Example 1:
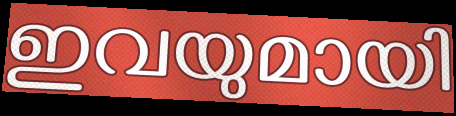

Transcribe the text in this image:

ഇവയുമായി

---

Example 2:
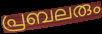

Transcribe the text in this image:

പ്രബലരും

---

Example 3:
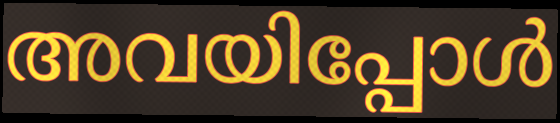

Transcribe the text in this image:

അവയിപ്പോൾ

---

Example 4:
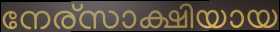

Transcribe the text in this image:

നേര്സാക്ഷിയായ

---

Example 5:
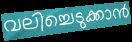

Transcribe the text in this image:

വലിച്ചെടുക്കാൻ